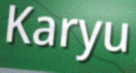
Karyu